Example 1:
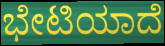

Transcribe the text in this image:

ಭೇಟಿಯಾದೆ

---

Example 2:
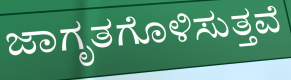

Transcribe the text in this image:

ಜಾಗೃತಗೊಳಿಸುತ್ತವೆ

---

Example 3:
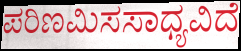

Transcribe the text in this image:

ಪರಿಣಮಿಸಸಾಧ್ಯವಿದೆ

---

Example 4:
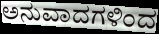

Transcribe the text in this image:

ಅನುವಾದಗಳಿಂದ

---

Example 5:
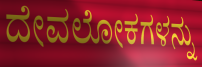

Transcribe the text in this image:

ದೇವಲೋಕಗಳನ್ನು